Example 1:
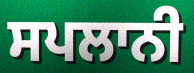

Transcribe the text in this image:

ਸਪਲਾਨੀ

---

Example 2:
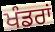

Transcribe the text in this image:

ਖੰਡਰਾਂ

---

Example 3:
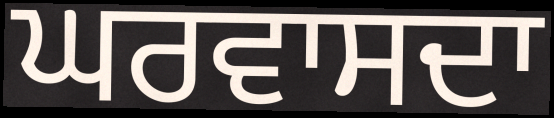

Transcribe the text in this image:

ਘਰਵਾਸਦਾ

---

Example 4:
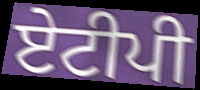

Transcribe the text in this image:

ਏਟੀਪੀ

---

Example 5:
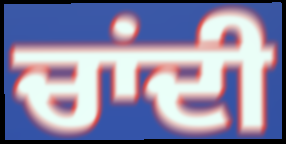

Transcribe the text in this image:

ਚਾਂਦੀ